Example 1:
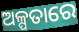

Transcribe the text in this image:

ଅଳ୍ପତାରେ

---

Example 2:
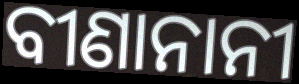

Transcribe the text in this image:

ବୀଣାନାନୀ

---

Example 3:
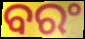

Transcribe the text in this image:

ବରଂ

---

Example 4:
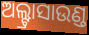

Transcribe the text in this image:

ଅଲ୍ଟ୍ରାସାଉଣ୍ଡ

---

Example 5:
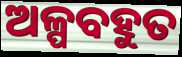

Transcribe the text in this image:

ଅଳ୍ପବହୁତ